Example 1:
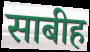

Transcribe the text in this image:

साबीह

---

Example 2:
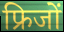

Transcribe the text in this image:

फ्रिजों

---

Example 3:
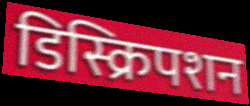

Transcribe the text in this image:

डिस्क्रिपशन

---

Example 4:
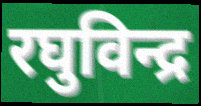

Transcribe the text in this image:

रघुविन्द्र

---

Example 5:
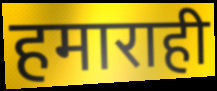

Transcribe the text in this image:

हमाराही